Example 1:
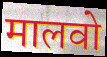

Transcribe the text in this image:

मालवो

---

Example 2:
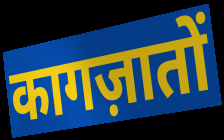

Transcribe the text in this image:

कागज़ातों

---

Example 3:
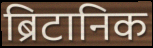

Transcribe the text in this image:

ब्रिटानिक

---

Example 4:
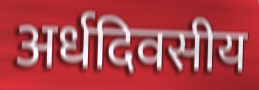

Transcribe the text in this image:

अर्धदिवसीय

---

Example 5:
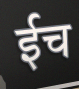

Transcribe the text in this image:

ईच